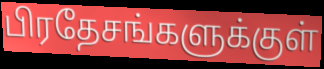
பிரதேசங்களுக்குள்